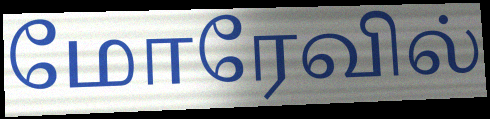
மோரேவில்